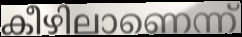
കീഴിലാണെന്ന്